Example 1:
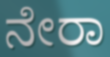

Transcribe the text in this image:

ನೇರಾ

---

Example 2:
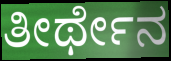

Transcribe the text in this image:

ತೀರ್ಥೇನ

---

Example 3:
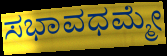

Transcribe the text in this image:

ಸಭಾವಧಮ್ಮೇ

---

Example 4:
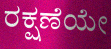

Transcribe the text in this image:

ರಕ್ಷಣೆಯೇ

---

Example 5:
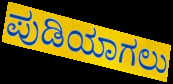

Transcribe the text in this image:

ಪುಡಿಯಾಗಲು